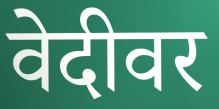
वेदीवर